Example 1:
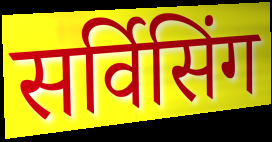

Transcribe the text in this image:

सर्विसिंग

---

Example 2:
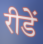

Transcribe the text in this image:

रीडें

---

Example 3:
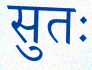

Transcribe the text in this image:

सुतः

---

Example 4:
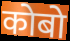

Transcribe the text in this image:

कोबो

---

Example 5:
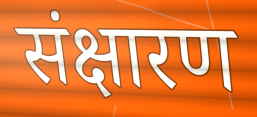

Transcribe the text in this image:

संक्षारण